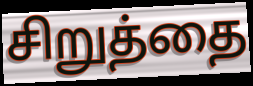
சிறுத்தை